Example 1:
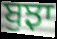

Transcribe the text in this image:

ਬੁਝਾ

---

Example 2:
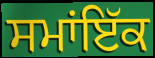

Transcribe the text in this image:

ਸਮਾਂਇੱਕ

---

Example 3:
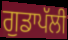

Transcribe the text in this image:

ਗੁਡਾਪੱਲੀ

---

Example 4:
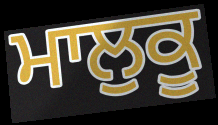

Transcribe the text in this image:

ਮਾਲੁਕੂ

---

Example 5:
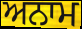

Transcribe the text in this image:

ਅਨਾਮ